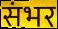
संभर